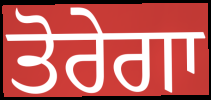
ਤੋਰੇਗਾ